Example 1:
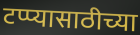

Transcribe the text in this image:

टप्प्यासाठीच्या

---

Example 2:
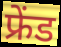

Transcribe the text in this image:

फ्रेंड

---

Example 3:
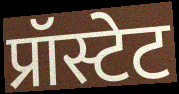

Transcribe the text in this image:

प्रॉस्टेट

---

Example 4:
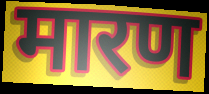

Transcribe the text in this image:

मारण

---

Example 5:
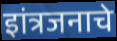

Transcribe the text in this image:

इांत्रजनाचे